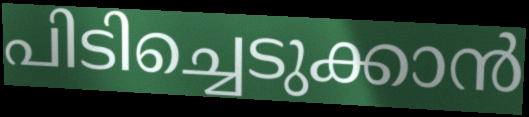
പിടിച്ചെടുക്കാൻ